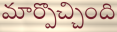
మార్పొచ్చింది